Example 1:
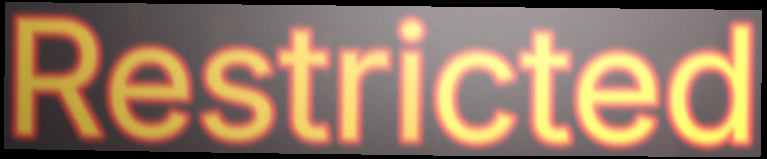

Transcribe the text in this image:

Restricted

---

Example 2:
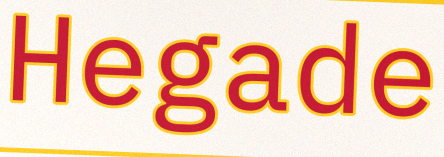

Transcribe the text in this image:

Hegade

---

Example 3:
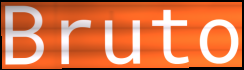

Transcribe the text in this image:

Bruto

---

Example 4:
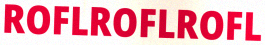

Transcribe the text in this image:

ROFLROFLROFL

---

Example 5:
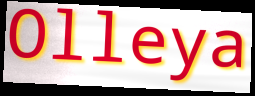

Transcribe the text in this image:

Olleya